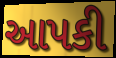
આપકી